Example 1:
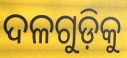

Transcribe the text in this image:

ଦଳଗୁଡ଼ିକୁ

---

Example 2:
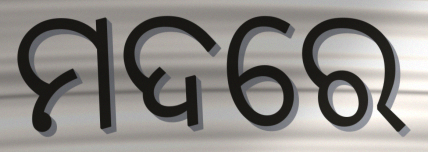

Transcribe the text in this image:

ମଦରେ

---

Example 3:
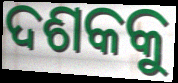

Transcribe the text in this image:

ଦଶକକୁ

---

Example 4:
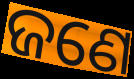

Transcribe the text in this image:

ଜଣେ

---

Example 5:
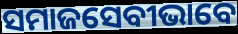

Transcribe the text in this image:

ସମାଜସେବୀଭାବେ